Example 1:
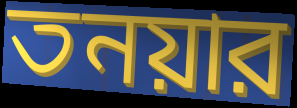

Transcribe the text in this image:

তনয়ার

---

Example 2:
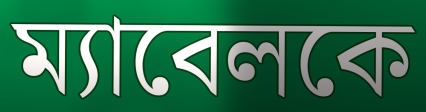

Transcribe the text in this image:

ম্যাবেলকে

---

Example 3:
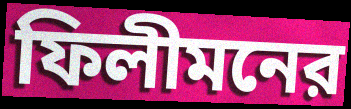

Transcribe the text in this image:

ফিলীমনের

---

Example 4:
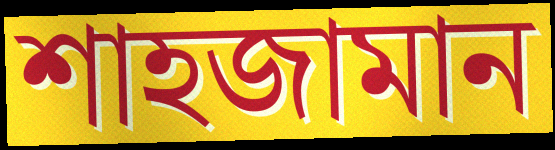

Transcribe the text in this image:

শাহজামান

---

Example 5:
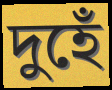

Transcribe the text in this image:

দুহেঁ